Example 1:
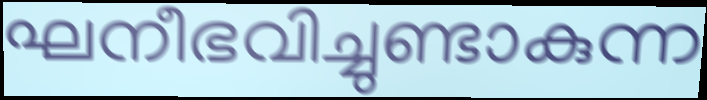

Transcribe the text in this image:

ഘനീഭവിച്ചുണ്ടാകുന്ന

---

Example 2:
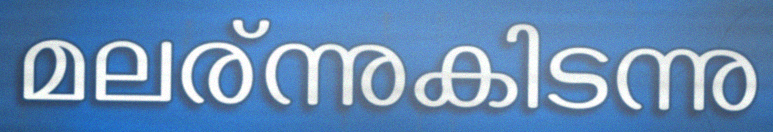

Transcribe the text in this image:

മലര്ന്നുകിടന്നു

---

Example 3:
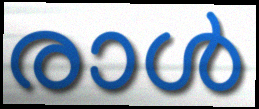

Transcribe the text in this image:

രാൾ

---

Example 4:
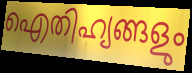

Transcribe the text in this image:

ഐതിഹ്യങ്ങളും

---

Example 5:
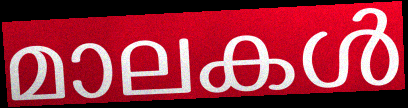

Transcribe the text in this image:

മാലകൾ